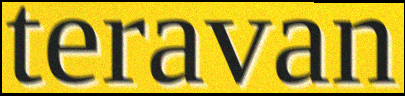
teravan